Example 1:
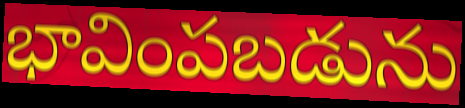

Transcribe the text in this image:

భావింపబడును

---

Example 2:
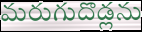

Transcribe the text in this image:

మరుగుదొడ్లను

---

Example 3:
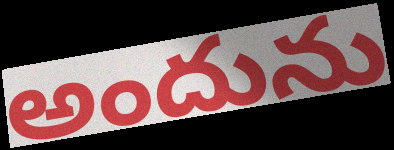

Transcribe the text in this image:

అందును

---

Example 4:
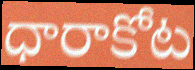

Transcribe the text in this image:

ధారాకోట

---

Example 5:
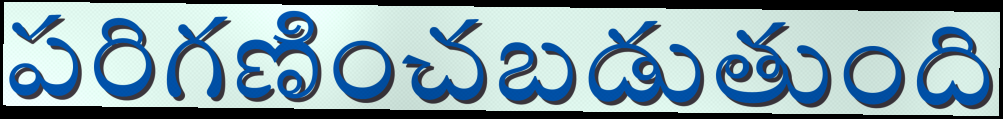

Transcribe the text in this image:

పరిగణించబడుతుంది